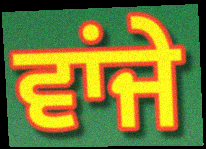
ਵਾਂਜੇ